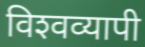
विश्‍वव्यापी